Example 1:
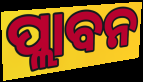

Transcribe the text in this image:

ପ୍ଲାବନ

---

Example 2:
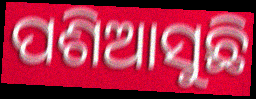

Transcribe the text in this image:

ପଶିଆସୁଛି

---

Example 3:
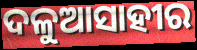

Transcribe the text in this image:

ଦଳୁଆସାହୀର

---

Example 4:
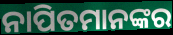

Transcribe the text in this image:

ନାପିତମାନଙ୍କର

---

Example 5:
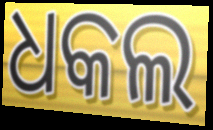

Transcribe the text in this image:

ଧକଲ